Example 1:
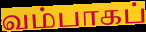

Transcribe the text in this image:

வம்பாகப்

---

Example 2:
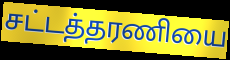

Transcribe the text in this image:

சட்டத்தரணியை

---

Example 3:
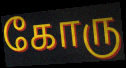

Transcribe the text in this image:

கோரு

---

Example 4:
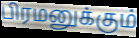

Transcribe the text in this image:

பிரமனுக்கும்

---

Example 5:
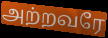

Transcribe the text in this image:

அற்றவரே